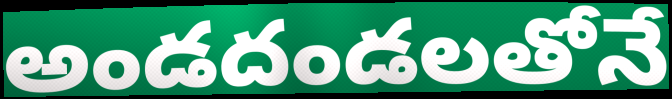
అండదండలతోనే